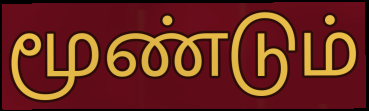
மூண்டும்